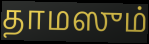
தாமஸும்